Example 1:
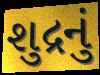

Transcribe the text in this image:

શુદ્રનું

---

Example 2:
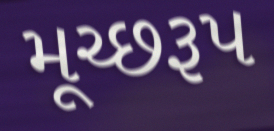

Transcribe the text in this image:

મૂચ્છરૂપ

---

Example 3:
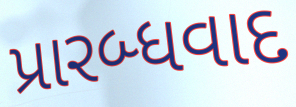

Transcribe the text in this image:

પ્રારબ્ધવાદ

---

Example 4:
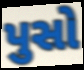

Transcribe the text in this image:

પુસો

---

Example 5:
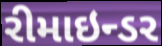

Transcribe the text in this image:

રીમાઇન્ડર